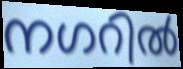
നഗറിൽ